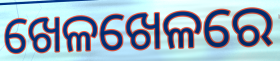
ଖେଳଖେଳରେ